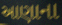
આણાના